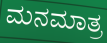
ಮನಮಾತ್ರ